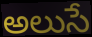
అలుసే